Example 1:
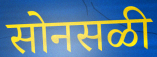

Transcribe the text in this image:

सोनसळी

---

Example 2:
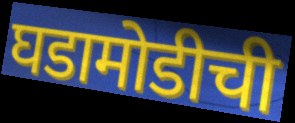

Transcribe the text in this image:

घडामोडीची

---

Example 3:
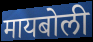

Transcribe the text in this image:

मायबोली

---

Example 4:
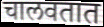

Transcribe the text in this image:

चालवतात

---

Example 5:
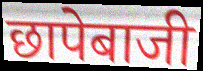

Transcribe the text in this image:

छापेबाजी